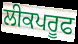
ਲੀਕਪਰੂਫ